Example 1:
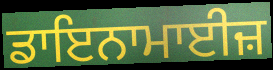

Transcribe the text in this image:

ਡਾਇਨਾਮਾਈਜ਼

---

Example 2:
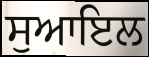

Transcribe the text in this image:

ਸੁਆਇਲ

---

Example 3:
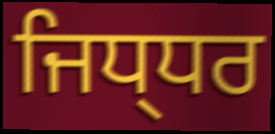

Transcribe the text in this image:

ਜਿਧ੍ਧਰ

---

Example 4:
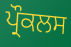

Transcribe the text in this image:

ਪ੍ਰੌਕਲਸ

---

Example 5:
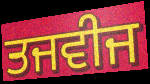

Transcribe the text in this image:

ਤਜਵੀਜ